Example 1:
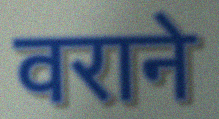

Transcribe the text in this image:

वराने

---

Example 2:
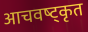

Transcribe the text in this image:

आचवष्ट्कृत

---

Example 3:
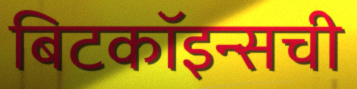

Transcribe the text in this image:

बिटकॉइन्सची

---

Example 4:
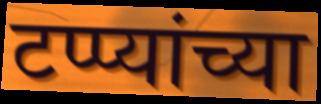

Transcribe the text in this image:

टप्प्यांच्या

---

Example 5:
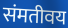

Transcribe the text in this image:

संमतीवय